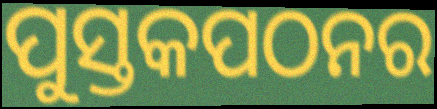
ପୁସ୍ତକପଠନର